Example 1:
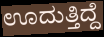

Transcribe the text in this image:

ಊದುತ್ತಿದ್ದೆ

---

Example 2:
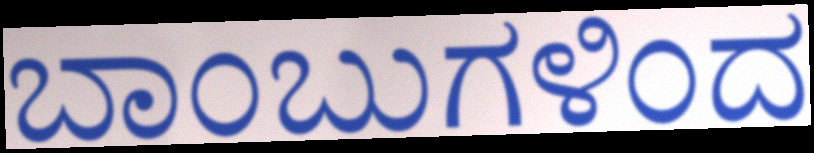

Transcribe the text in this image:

ಬಾಂಬುಗಳಿಂದ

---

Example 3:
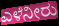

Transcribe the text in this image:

ಎಳೆನೀರು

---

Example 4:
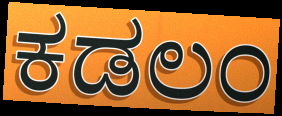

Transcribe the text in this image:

ಕಡಲಂ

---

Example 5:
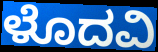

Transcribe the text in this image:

ಳೊದವಿ